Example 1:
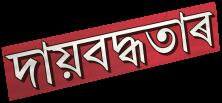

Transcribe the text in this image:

দায়বদ্ধতাৰ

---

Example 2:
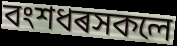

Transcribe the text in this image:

বংশধৰসকলে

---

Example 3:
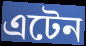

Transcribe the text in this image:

এটেন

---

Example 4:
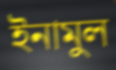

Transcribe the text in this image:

ইনামুল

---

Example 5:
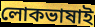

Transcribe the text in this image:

লোকভাষাই